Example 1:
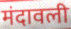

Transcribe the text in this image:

मंदावली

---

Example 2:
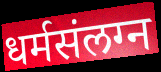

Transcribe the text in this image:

धर्मसंलग्न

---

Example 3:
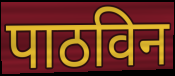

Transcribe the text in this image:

पाठविन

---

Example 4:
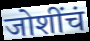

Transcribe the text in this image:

जोशींचं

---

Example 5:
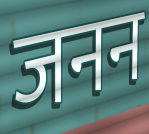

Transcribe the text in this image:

जनन